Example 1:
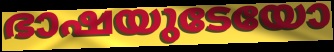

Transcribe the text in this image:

ഭാഷയുടേയോ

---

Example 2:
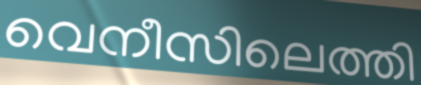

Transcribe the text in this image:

വെനീസിലെത്തി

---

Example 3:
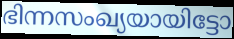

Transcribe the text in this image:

ഭിന്നസംഖ്യയായിട്ടോ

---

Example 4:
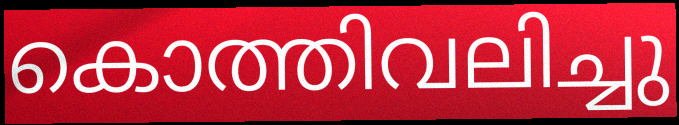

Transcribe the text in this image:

കൊത്തിവലിച്ചു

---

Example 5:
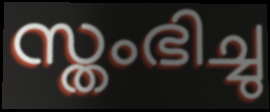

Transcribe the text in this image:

സ്തംഭിച്ചു